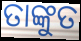
ତାଙ୍କୁତ